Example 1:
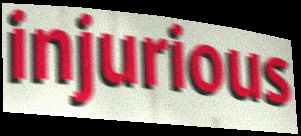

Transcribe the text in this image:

injurious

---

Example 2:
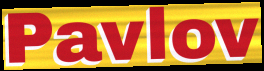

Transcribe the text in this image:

Pavlov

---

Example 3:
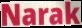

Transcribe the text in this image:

Narak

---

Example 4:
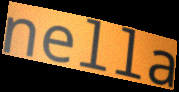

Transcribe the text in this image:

nella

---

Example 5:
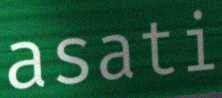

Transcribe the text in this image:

asati